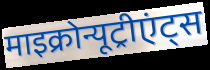
माइक्रोन्यूट्रीएंट्स